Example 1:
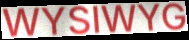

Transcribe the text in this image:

WYSIWYG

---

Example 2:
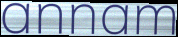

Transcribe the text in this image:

annam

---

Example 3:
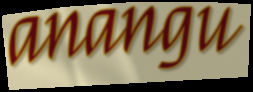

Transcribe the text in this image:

anangu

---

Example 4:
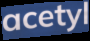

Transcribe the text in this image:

acetyl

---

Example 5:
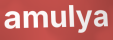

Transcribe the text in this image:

amulya